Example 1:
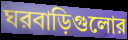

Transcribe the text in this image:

ঘরবাড়িগুলোর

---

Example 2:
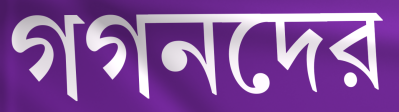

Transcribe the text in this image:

গগনদের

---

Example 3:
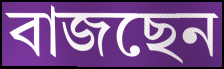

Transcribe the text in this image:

বাজছেন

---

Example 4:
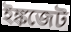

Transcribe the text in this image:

ইঙ্কজেট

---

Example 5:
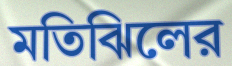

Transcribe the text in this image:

মতিঝিলের